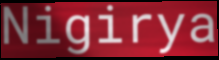
Nigirya